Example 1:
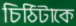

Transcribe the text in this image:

চিঠিটাকে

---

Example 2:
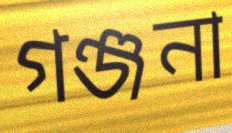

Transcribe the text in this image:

গঞ্জনা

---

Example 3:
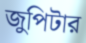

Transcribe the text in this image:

জুপিটার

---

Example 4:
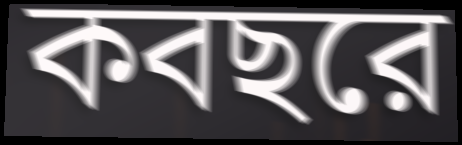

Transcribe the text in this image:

কবছরে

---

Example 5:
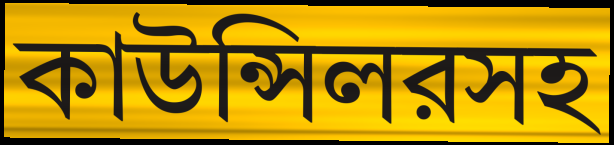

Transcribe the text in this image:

কাউন্সিলরসহ